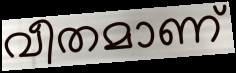
വീതമാണ്